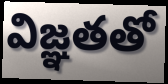
విజ్ఞతతో